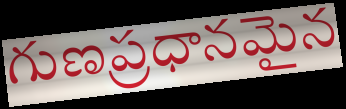
గుణప్రధానమైన